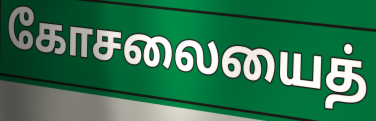
கோசலையைத்